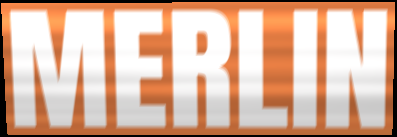
MERLIN